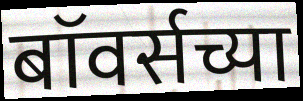
बॉवर्सच्या